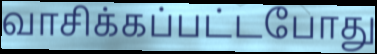
வாசிக்கப்பட்டபோது